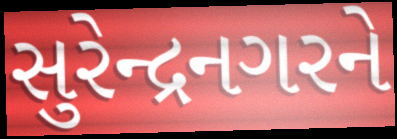
સુરેન્દ્રનગરને